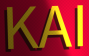
KAI